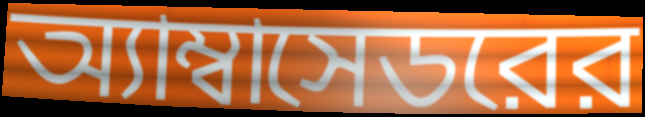
অ্যাম্বাসেডরের